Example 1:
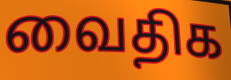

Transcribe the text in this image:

வைதிக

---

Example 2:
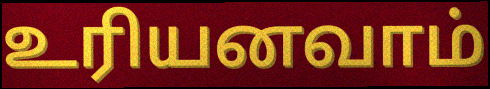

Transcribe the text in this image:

உரியனவாம்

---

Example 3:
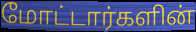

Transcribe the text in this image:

மோட்டார்களின்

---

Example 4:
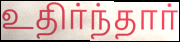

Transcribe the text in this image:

உதிர்ந்தார்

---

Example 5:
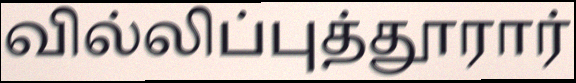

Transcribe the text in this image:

வில்லிப்புத்தூரார்